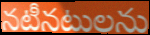
నటీనటులను